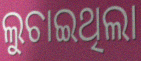
ଲୁଚାଇଥିଲା